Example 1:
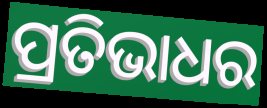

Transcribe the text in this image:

ପ୍ରତିଭାଧର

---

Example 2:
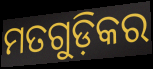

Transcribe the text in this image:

ମତଗୁଡ଼ିକର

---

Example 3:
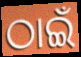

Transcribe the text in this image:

ଠାଇଁ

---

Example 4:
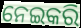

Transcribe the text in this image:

ନେଇକରି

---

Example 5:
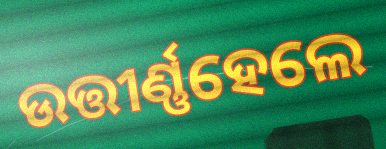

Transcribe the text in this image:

ଉତ୍ତୀର୍ଣ୍ଣହେଲେ